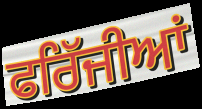
ਫਰਿੱਜੀਆਂ